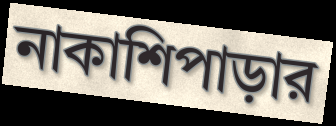
নাকাশিপাড়ার